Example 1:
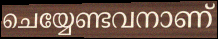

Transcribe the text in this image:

ചെയ്യേണ്ടവനാണ്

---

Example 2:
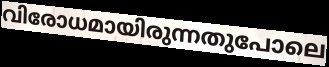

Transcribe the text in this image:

വിരോധമായിരുന്നതുപോലെ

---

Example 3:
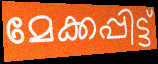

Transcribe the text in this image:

മേക്കപ്പിട്ട്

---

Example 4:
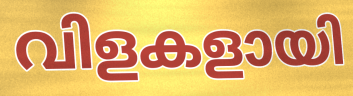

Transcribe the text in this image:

വിളകളായി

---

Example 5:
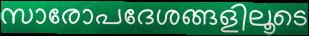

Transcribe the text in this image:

സാരോപദേശങ്ങളിലൂടെ